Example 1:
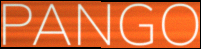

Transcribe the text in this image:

PANGO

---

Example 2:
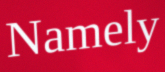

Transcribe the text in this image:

Namely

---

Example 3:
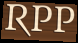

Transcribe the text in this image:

RPP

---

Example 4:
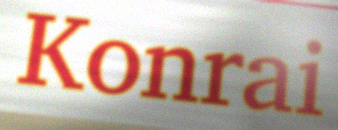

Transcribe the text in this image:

Konrai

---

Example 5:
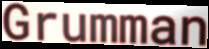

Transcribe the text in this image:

Grumman